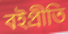
বইপ্রীতি